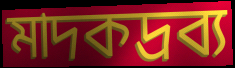
মাদকদ্রব্য